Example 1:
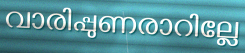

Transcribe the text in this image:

വാരിപ്പുണരാറില്ലേ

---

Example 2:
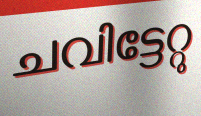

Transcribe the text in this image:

ചവിട്ടേറ്റു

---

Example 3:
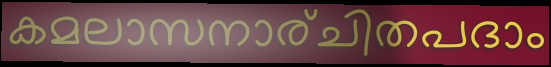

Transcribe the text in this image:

കമലാസനാര്ചിതപദാം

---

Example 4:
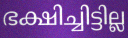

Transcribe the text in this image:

ഭക്ഷിച്ചിട്ടില്ല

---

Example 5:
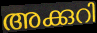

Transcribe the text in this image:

അക്കുറി